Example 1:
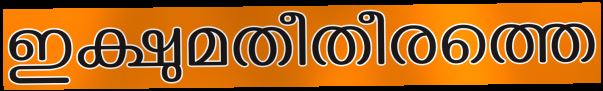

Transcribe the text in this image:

ഇക്ഷുമതീതീരത്തെ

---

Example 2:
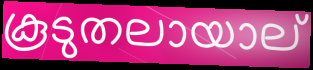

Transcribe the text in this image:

കൂടുതലായാല്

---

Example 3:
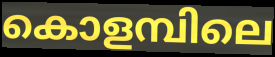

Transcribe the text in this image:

കൊളമ്പിലെ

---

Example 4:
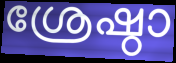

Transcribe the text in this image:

ശ്രേഷ്ഠാ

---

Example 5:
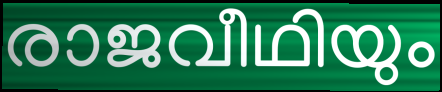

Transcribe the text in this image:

രാജവീഥിയും